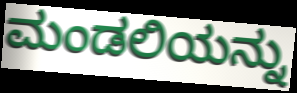
ಮಂಡಲಿಯನ್ನು